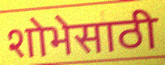
शोभेसाठी